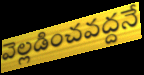
వెల్లడించవద్దనే